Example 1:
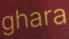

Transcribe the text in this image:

ghara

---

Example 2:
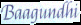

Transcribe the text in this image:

Baagundhi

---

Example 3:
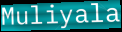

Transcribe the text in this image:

Muliyala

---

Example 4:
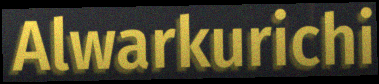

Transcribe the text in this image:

Alwarkurichi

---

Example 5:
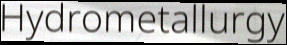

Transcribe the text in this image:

Hydrometallurgy